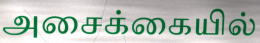
அசைக்கையில்